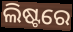
ଲିଷ୍ଟରେ